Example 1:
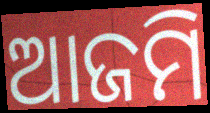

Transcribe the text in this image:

ଆଜମି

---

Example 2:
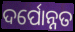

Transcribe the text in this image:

ଦର୍ପୋନ୍ନତ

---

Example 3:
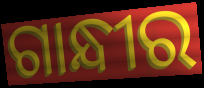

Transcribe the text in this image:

ଗାନ୍ଧୀର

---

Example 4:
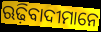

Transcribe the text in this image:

ଋଢ଼ିବାଦୀମାନେ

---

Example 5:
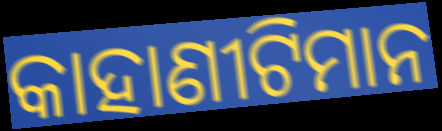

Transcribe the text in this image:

କାହାଣୀଟିମାନ